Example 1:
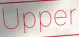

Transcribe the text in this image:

Upper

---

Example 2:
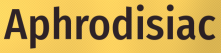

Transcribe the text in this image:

Aphrodisiac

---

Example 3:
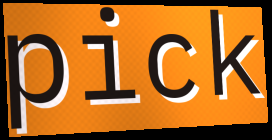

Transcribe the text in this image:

pick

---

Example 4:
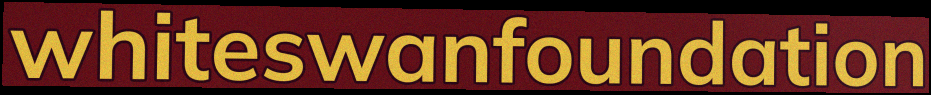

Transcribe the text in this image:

whiteswanfoundation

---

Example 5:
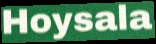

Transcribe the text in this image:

Hoysala